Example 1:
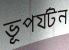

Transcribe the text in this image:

ভূপর্যটন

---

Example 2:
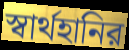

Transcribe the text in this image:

স্বার্থহানির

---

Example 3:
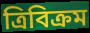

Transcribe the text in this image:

ত্রিবিক্রম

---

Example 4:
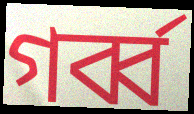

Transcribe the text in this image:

গর্ব্ব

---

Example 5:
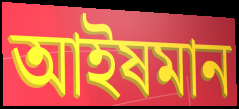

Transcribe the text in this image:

আইষমান